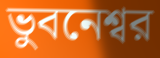
ভুবনেশ্বর